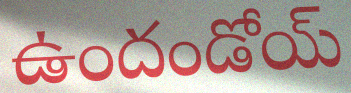
ఉందండోయ్